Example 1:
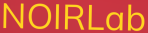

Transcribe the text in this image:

NOIRLab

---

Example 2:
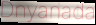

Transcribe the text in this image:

Dnyanada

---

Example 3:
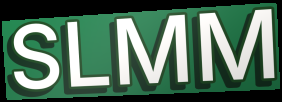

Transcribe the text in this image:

SLMM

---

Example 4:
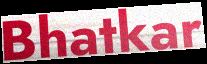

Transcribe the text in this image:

Bhatkar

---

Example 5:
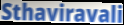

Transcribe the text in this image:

Sthaviravali